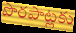
పొరపాట్లకు